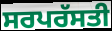
ਸਰਪਰੱਸਤੀ